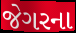
જેગરના